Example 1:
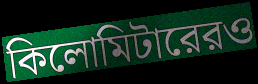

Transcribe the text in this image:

কিলোমিটারেরও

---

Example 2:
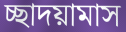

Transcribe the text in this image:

চ্ছাদয়ামাস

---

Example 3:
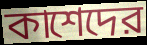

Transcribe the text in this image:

কাশেদের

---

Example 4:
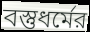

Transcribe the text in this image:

বস্তুধর্মের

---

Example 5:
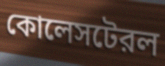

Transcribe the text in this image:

কোলেসটেরল